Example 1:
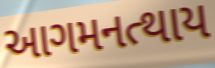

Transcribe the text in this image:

આગમનત્થાય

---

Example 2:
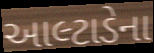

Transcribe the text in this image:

આલ્ટાડેના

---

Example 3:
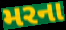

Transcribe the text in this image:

મરના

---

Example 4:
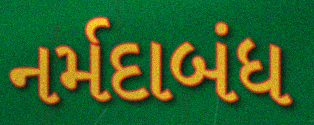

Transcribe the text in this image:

નર્મદાબંધ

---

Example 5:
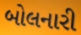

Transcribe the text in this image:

બોલનારી